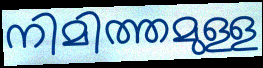
നിമിത്തമുള്ള